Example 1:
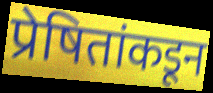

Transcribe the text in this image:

प्रेषितांकडून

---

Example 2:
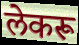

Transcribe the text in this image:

लेकरू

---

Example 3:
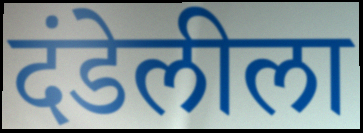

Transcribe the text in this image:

दंडेलीला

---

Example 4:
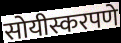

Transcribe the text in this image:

सोयीस्करपणे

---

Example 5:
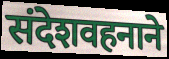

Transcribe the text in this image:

संदेशवहनाने